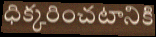
ధిక్కరించటానికి